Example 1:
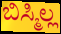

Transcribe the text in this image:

ಬಿಸ್ಮಿಲ್ಲ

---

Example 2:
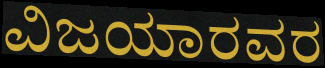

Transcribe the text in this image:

ವಿಜಯಾರವರ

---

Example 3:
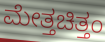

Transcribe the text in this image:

ಮೇತ್ತಚಿತ್ತಂ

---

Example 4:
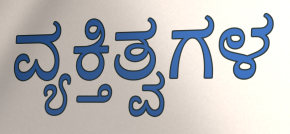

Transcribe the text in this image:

ವ್ಯಕ್ತಿತ್ವಗಳ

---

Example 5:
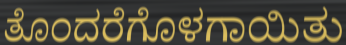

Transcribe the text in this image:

ತೊಂದರೆಗೊಳಗಾಯಿತು